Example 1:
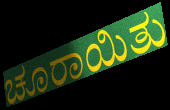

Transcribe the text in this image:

ಚೂರಾಯಿತು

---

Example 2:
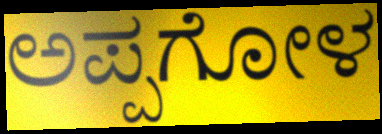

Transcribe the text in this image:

ಅಪ್ಪಗೋಳ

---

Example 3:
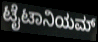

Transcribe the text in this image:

ಟೈಟಾನಿಯಮ್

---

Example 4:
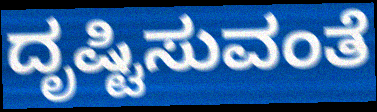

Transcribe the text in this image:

ದೃಷ್ಟಿಸುವಂತೆ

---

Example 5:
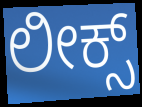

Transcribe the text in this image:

ಲೀಕ್ಸ್